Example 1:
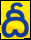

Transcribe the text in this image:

దీ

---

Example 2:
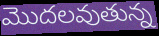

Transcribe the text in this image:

మొదలవుతున్న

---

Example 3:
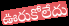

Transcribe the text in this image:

ఊరుకోలేదు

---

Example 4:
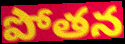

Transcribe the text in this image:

పోతన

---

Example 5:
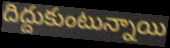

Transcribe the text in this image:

దిద్దుకుంటున్నాయి